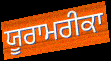
ਯੂਰਾਮਰੀਕਾ